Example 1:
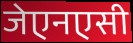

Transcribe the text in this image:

जेएनएसी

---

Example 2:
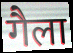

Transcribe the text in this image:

गैला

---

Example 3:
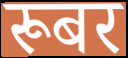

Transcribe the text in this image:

रूबर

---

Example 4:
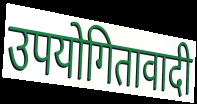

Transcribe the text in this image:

उपयोगितावादी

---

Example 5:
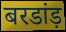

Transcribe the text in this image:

बरडांड़